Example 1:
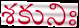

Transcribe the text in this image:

శకునిః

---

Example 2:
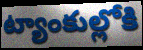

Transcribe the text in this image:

ట్యాంకుల్లోకి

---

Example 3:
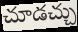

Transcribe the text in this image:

చూడచ్చు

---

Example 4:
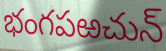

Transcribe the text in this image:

భంగపఱచున్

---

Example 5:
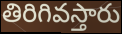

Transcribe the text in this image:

తిరిగివస్తారు